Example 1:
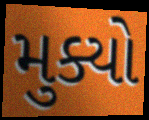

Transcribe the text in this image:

મુક્યો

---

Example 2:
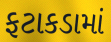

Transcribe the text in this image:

ફટાકડામાં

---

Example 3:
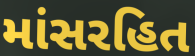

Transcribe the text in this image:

માંસરહિત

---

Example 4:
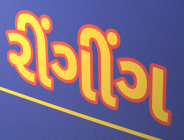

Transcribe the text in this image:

રીંગીંગ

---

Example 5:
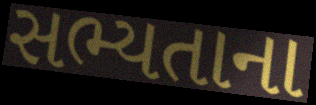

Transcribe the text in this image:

સભ્યતાના